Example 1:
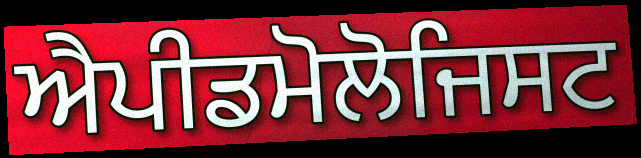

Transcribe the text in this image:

ਐਪੀਡਮੋਲੋਜਿਸਟ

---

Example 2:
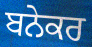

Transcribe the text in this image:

ਬਨੇਕਰ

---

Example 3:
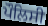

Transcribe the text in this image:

ਪੌਲਿਸੀ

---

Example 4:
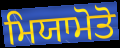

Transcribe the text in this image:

ਮਿਯਾਮੋਤੋ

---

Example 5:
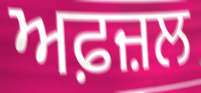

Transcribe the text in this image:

ਅਫ਼ਜ਼ਲ